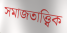
সমাজতাত্ত্বিক